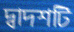
দ্বাদশটি